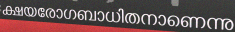
ക്ഷയരോഗബാധിതനാണെന്നു